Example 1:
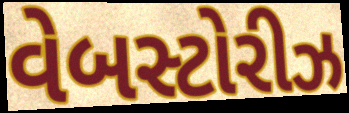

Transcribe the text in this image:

વેબસ્ટોરીઝ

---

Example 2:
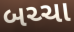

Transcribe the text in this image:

બચ્ચા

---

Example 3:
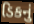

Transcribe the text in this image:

ડિકનું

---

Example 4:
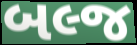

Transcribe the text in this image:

બલ્જ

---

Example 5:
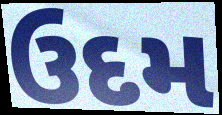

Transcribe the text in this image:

ઉદમ